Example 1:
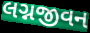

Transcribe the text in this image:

લગ્નજીવન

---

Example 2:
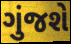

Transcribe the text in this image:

ગુંજશે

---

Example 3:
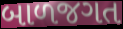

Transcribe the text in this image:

બાળજગત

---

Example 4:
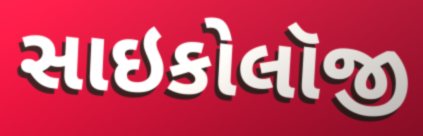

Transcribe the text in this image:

સાઇકોલૉજી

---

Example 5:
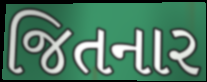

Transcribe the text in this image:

જિતનાર